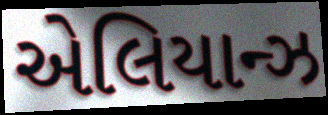
એલિયાન્ઝ